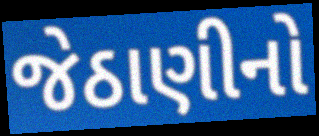
જેઠાણીનો